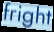
fright